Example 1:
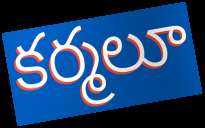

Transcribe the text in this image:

కర్మలూ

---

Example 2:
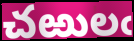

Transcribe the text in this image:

చఱులఁ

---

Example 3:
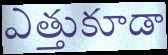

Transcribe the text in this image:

ఎత్తుకూడా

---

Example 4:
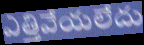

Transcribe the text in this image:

ఎత్తివేయలేదు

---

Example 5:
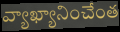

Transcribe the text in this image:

వ్యాఖ్యానించేంత